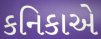
કનિકાએ